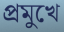
প্ৰমুখে